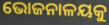
ଭୋଜନାଳୟକୁ